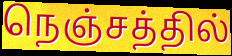
நெஞ்சத்தில்